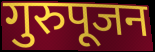
गुरुपूजन